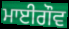
ਮਾਈਗੌਵ